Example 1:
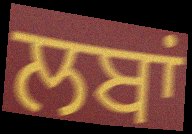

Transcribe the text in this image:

ਲਬਾਂ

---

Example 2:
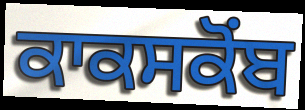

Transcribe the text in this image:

ਕਾਕਸਕੋਂਬ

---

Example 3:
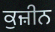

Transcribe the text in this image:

ਕੁਜ਼ੀਨ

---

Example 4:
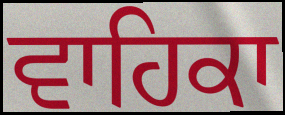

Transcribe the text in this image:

ਵਾਹਿਕਾ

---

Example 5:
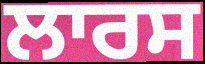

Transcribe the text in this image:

ਲਾਰਸ